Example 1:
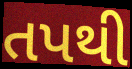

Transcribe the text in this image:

તપથી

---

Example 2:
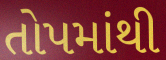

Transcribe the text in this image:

તોપમાંથી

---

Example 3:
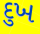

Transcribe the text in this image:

દુખ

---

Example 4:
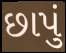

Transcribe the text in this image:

છાપું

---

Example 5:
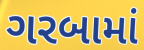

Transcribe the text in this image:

ગરબામાં